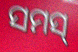
ସମସ୍